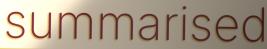
summarised